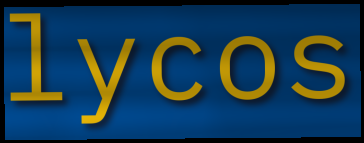
lycos